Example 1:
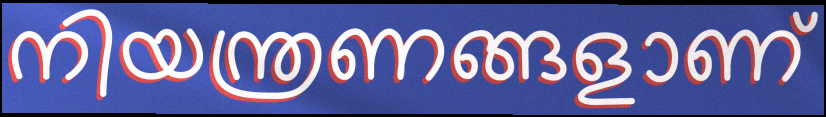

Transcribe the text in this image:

നിയന്ത്രണങ്ങളാണ്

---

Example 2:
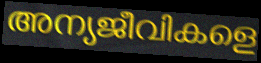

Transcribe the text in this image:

അന്യജീവികളെ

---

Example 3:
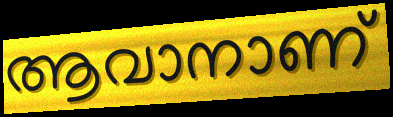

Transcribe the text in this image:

ആവാനാണ്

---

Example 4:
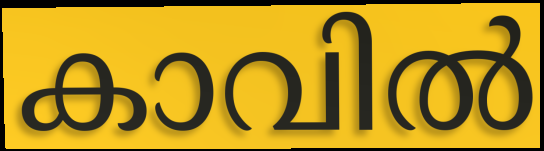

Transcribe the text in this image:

കാവിൽ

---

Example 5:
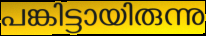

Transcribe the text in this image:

പങ്കിട്ടായിരുന്നു